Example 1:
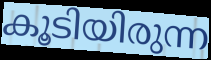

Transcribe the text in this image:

കൂടിയിരുന്ന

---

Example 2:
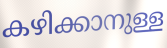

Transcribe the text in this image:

കഴിക്കാനുള്ള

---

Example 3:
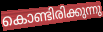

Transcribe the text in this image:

കൊണ്ടിരിക്കുന്നു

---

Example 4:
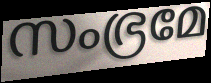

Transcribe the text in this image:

സംഭ്രമേ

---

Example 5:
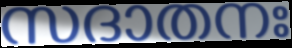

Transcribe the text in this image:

സദാതനഃ